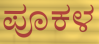
ಪೂಕಳ